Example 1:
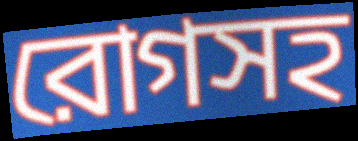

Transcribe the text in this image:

রোগসহ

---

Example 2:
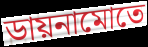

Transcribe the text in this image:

ডায়নামোতে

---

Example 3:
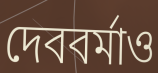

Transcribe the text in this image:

দেববর্মাও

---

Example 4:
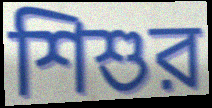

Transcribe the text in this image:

শিশুর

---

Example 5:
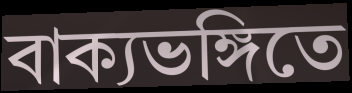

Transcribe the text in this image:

বাক্যভঙ্গিতে